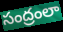
సంద్రంలా